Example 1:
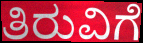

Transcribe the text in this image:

ತಿರುವಿಗೆ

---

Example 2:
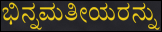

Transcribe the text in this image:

ಭಿನ್ನಮತೀಯರನ್ನು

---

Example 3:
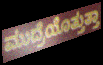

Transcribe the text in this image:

ಮುದ್ರೆಯೊತ್ತುತ್ತಾ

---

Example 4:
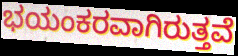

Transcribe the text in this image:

ಭಯಂಕರವಾಗಿರುತ್ತವೆ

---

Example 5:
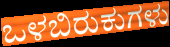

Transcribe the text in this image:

ಒಳಬಿರುಕುಗಳು